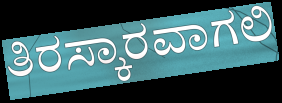
ತಿರಸ್ಕಾರವಾಗಲಿ